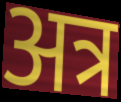
अत्र